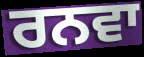
ਰਨਵਾ